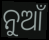
ନୁଆଁ